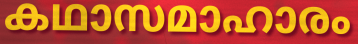
കഥാസമാഹാരം